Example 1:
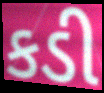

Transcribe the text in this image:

કડી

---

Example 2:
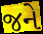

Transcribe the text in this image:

જને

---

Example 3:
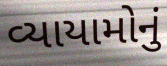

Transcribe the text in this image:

વ્યાયામોનું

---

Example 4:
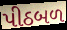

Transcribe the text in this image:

પીઠબળ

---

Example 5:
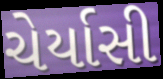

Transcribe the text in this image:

ચેર્યાસી